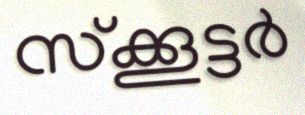
സ്ക്കൂട്ടർ